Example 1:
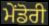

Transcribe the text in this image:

ਮੇਂਡੋਰੀ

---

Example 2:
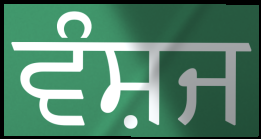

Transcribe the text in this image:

ਵੰਸ਼ਜ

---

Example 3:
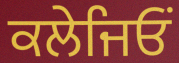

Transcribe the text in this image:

ਕਲੇਜਿਓਂ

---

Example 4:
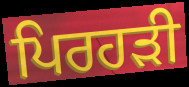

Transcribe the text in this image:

ਪਿਰਹੜੀ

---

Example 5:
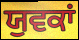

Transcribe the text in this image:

ਯੁਵਕਾਂ